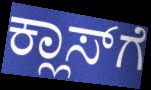
ಕ್ಲಾಸ್‌ಗೆ